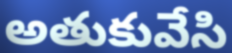
అతుకువేసి